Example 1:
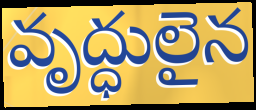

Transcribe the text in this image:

వృద్ధులైన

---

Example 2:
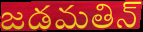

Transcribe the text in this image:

జడమతిన్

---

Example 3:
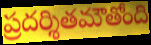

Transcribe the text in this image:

ప్రదర్శితమౌతోంది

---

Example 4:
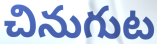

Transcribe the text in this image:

చినుగుట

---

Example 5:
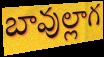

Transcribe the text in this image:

బావుల్లాగ